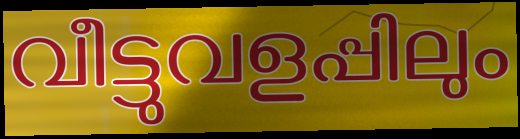
വീട്ടുവളപ്പിലും